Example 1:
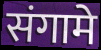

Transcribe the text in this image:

संगामे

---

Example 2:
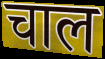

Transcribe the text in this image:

चाल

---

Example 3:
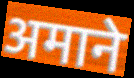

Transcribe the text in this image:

अमाने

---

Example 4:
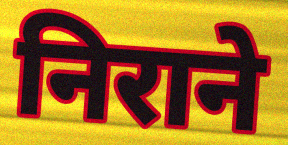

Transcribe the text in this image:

निराने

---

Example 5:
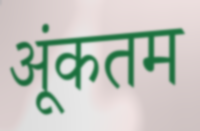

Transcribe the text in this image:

अूंकतम